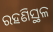
ରହଣିସ୍ଥଳ